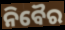
ନିବୈର